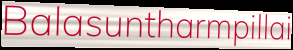
Balasuntharmpillai